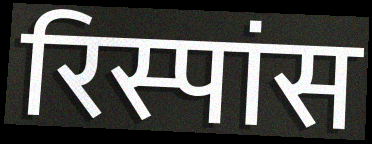
रिस्पांस